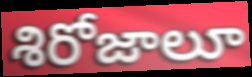
శిరోజాలూ